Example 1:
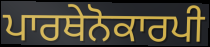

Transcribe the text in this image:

ਪਾਰਥੇਨੋਕਾਰਪੀ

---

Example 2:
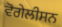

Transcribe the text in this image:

ਵੋਗੇਲੀਸਨ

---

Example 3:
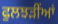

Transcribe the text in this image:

ਫੁਲਝੜੀਂਆਂ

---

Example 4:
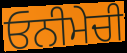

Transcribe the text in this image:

ਓਨੀਮੇਚੀ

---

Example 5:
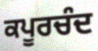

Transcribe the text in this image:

ਕਪੂਰਚੰਦ